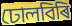
ঢোলবিৰি